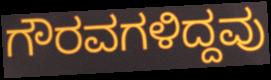
ಗೌರವಗಳಿದ್ದವು